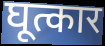
घूत्कार